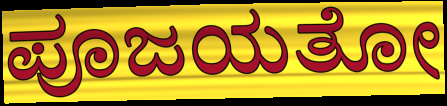
ಪೂಜಯತೋ